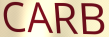
CARB